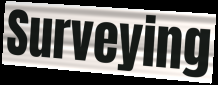
Surveying